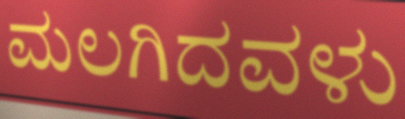
ಮಲಗಿದವಳು